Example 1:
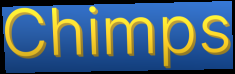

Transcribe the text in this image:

Chimps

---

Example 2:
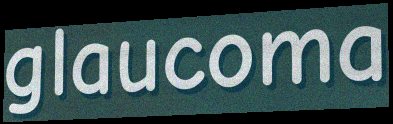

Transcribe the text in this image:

glaucoma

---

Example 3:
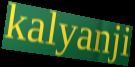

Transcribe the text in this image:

kalyanji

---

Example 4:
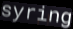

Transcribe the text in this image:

syring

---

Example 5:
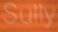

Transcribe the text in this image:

Sully